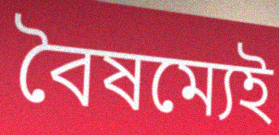
বৈষম্যেই